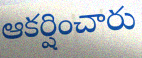
ఆకర్షించారు